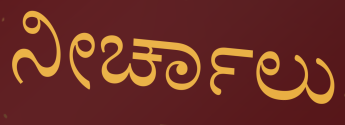
ನೀರ್ಚಾಲು